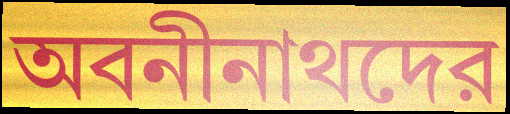
অবনীনাথদের